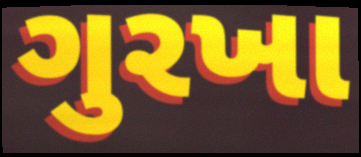
ગુરખા